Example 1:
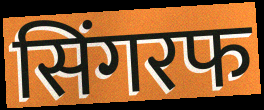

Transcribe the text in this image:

सिंगरफ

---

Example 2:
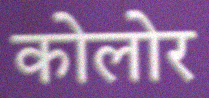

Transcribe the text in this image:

कोलोर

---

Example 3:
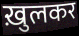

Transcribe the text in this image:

ख़ुलकर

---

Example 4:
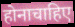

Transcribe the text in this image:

होनाचाहिए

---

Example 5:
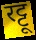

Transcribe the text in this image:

रट्टू